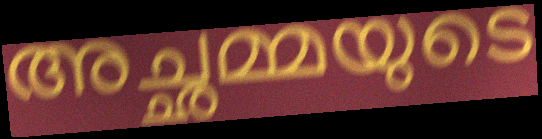
അച്ഛമ്മയുടെ